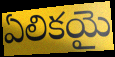
ఏలికయై